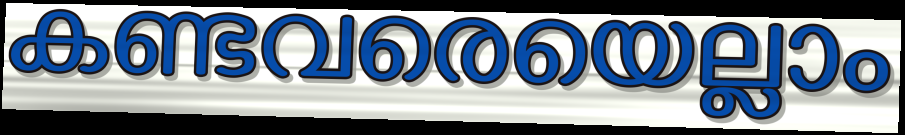
കണ്ടവരെയെല്ലാം